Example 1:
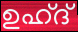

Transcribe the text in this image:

ഉഹ്ദ്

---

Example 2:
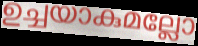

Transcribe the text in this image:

ഉച്ചയാകുമല്ലോ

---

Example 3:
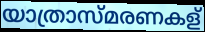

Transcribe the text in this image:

യാത്രാസ്മരണകള്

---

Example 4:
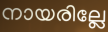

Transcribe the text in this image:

നായരില്ലേ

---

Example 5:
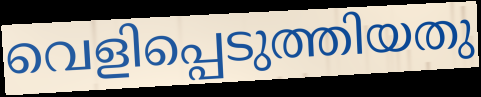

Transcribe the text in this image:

വെളിപ്പെടുത്തിയതു